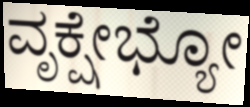
ವೃಕ್ಷೇಭ್ಯೋ